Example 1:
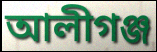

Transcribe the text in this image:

আলীগঞ্জ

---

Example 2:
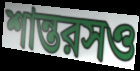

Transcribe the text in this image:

শান্তরসও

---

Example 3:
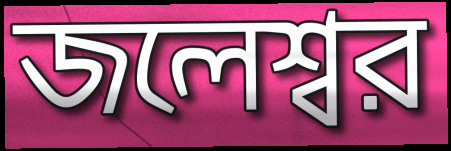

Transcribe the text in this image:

জলেশ্বর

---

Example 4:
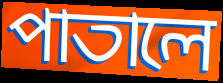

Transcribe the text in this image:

পাতালে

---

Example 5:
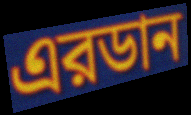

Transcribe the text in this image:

এরডান